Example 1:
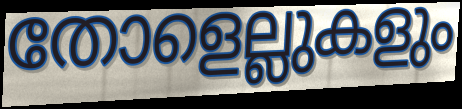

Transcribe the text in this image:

തോളെല്ലുകളും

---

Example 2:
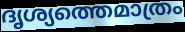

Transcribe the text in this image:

ദൃശ്യത്തെമാത്രം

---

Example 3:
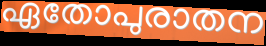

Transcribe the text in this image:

ഏതോപുരാതന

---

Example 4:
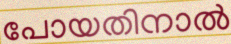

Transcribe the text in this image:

പോയതിനാൽ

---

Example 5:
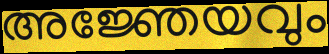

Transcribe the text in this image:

അജ്ഞേയവും